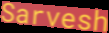
Sarvesh